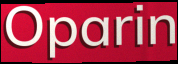
Oparin